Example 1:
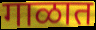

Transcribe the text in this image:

गाळात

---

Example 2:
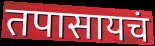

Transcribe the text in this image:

तपासायचं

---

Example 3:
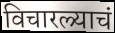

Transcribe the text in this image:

विचारल्याचं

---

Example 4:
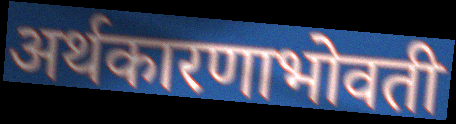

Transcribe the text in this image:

अर्थकारणाभोवती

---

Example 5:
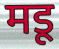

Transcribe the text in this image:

मडू